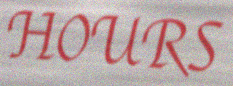
HOURS